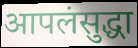
आपलंसुद्धा